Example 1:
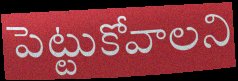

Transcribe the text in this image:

పెట్టుకోవాలని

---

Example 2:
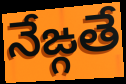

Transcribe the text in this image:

నేఙ్గతే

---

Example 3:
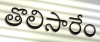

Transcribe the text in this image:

తొలిసారేం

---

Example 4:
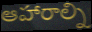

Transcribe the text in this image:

ఆహారాల్ని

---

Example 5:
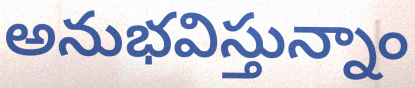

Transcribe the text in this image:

అనుభవిస్తున్నాం